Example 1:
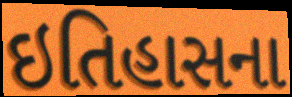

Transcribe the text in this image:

ઇતિહાસના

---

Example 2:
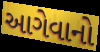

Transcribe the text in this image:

આગેવાનો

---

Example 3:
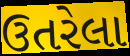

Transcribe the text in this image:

ઉતરેલા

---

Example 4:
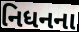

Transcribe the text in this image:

નિધનના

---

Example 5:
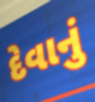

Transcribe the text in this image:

દેવાનું